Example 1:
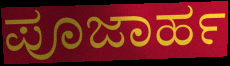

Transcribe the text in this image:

ಪೂಜಾರ್ಹ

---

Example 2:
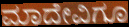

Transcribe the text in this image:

ಮಾದೇವಿಗೂ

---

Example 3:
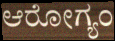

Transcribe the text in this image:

ಆರೋಗ್ಯಂ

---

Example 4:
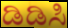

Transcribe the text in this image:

ಡಿಡಿಸಿ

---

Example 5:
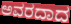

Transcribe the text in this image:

ಅವರದಾದ